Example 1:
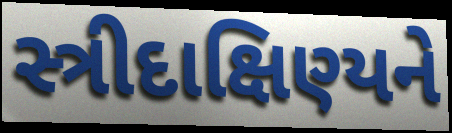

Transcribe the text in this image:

સ્ત્રીદાક્ષિણ્યને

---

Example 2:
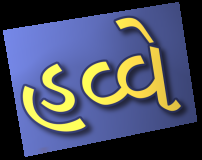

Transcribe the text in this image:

હવ્વે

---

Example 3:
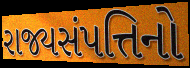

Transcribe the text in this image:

રાજ્યસંપત્તિનો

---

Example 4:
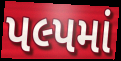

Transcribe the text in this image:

પલ્પમાં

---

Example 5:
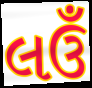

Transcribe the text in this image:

લઉઁ